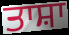
ਤਾਸ਼ਾ